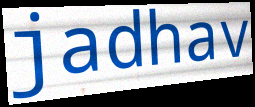
jadhav